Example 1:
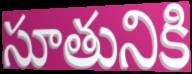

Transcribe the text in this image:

సూతునికి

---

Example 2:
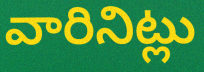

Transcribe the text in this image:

వారినిట్లు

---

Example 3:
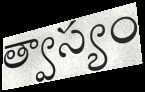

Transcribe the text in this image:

త్వాస్యం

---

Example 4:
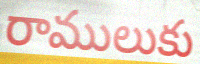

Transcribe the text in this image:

రాములుకు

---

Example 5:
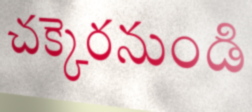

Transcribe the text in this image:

చక్కెరనుండి